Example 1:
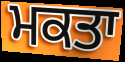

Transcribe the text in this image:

ਮਕਤਾ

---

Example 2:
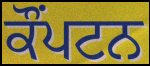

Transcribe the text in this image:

ਕੌਂਪਟਨ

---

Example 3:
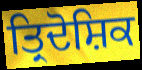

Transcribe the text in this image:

ਤ੍ਰਿਦੋਸ਼ਿਕ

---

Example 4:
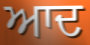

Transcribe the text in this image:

ਆਦ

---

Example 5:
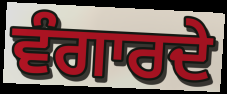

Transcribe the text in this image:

ਵੰਗਾਰਦੇ